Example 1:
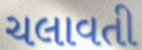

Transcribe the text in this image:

ચલાવતી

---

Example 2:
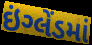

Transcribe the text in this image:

ઇંગ્લેંડમાં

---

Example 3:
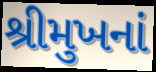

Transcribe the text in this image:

શ્રીમુખનાં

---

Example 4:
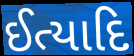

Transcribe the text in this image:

ઈત્યાદિ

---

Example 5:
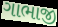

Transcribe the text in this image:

ગાભાજી